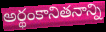
అర్థంకానితనాన్ని